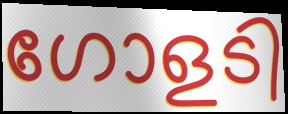
ഗോളടി